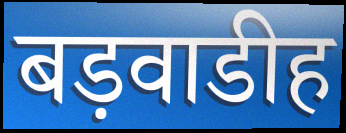
बड़वाडीह